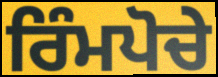
ਰਿੰਮਪੋਚੇ